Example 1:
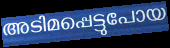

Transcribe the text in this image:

അടിമപ്പെട്ടുപോയ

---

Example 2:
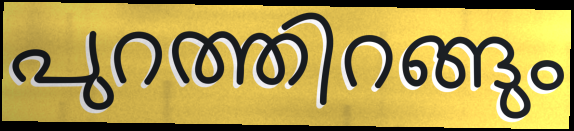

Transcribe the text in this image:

പുറത്തിറങ്ങും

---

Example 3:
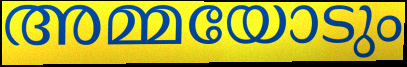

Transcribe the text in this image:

അമ്മയോടും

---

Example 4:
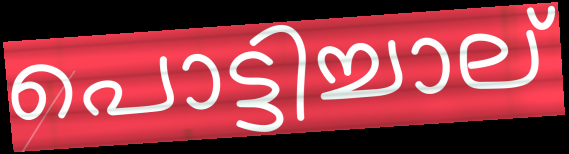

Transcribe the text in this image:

പൊട്ടിച്ചാല്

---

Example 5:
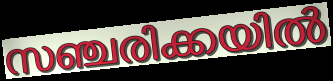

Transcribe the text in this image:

സഞ്ചരിക്കയിൽ